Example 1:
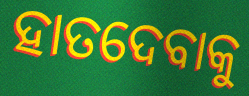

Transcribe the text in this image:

ହାତଦେବାକୁ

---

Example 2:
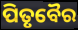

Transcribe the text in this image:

ପିତୃବୈର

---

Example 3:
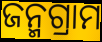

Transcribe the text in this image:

ଜନ୍ମଗ୍ରାମ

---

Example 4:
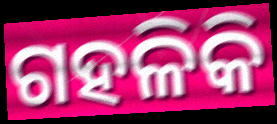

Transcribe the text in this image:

ଗହଳିକି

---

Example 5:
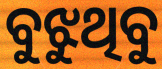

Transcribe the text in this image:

ବୁଝୁଥିବୁ